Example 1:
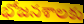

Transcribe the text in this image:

భోజనశాలకు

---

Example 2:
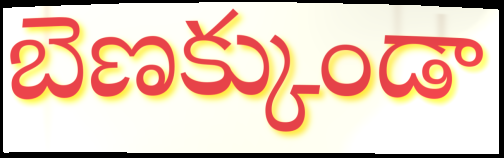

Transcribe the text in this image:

బెణక్కుండా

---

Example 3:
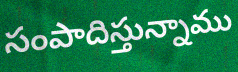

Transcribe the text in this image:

సంపాదిస్తున్నాము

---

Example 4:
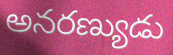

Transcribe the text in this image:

అనరణ్యుడు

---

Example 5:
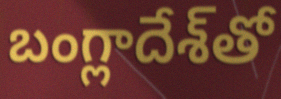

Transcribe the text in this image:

బంగ్లాదేశ్‌తో